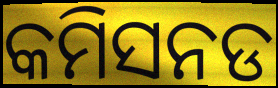
କମିସନଡ